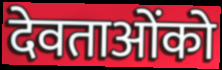
देवताओंको